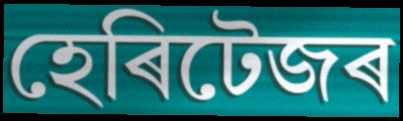
হেৰিটেজৰ